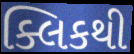
ક્લિકથી